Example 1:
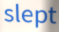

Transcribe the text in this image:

slept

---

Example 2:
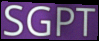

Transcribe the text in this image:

SGPT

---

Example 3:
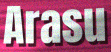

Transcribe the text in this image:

Arasu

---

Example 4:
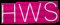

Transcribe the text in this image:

HWS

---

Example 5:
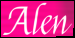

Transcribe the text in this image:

Alen